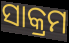
ସାକ୍ରମ